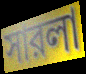
সারলা